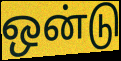
ஒன்டு